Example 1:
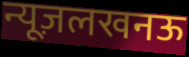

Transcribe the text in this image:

न्यूज़लखनऊ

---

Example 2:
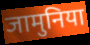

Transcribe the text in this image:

जामुनिया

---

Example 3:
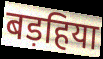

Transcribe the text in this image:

बड़हिया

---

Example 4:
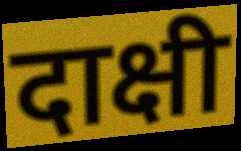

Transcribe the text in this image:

दाक्षी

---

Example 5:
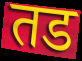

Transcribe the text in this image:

तड